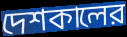
দেশকালের